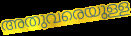
അതുവരെയുള്ള